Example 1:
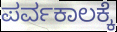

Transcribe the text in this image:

ಪರ್ವಕಾಲಕ್ಕೆ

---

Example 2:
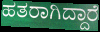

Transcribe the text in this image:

ಹತರಾಗಿದ್ದಾರೆ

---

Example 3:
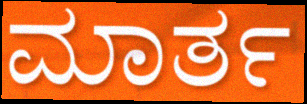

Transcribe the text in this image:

ಮಾರ್ತ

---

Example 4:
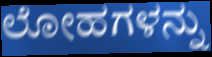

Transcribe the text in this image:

ಲೋಹಗಳನ್ನು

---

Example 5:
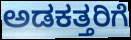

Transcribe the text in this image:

ಅಡಕತ್ತರಿಗೆ